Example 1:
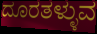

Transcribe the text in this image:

ದೂರತಳ್ಳುವ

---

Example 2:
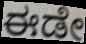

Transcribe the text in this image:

ಈಡೇ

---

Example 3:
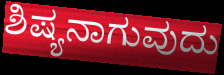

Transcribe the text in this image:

ಶಿಷ್ಯನಾಗುವುದು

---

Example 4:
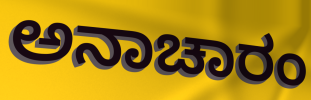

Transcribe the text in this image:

ಅನಾಚಾರಂ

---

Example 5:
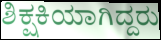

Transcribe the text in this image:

ಶಿಕ್ಷಕಿಯಾಗಿದ್ದರು